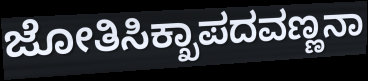
ಜೋತಿಸಿಕ್ಖಾಪದವಣ್ಣನಾ